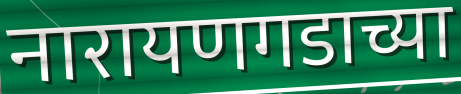
नारायणगडाच्या